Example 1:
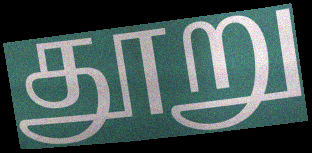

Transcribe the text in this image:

தூறு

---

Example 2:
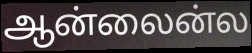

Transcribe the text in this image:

ஆன்லைன்ல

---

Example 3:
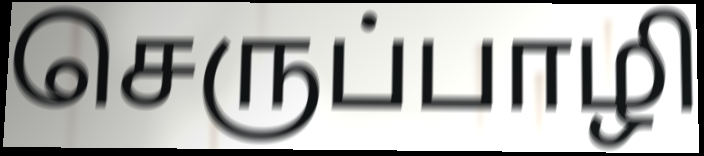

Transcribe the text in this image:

செருப்பாழி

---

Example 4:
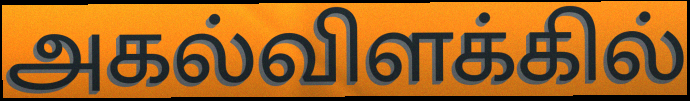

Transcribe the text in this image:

அகல்விளக்கில்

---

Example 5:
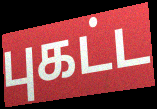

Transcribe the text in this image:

புகட்ட